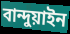
বান্দুয়াইন